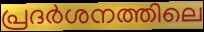
പ്രദർശനത്തിലെ